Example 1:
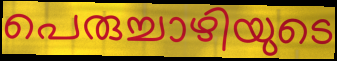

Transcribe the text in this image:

പെരുച്ചാഴിയുടെ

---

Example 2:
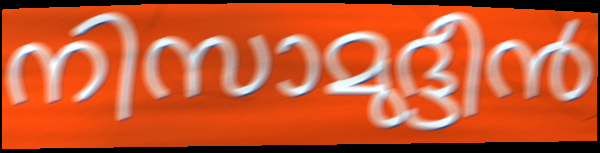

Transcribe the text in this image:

നിസാമുദ്ദീൻ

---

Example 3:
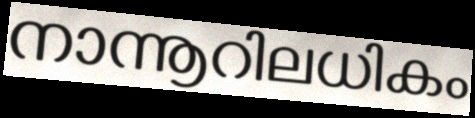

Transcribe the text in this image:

നാന്നൂറിലധികം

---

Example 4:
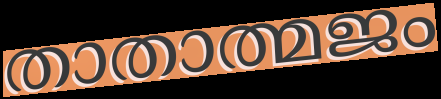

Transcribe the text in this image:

താതാത്മജം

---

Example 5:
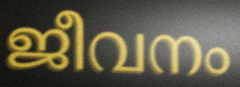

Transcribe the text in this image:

ജീവനം